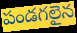
పండగలైన